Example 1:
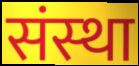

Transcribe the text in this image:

संस्‍था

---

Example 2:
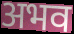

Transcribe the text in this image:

अभव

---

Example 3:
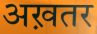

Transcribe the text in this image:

अख़तर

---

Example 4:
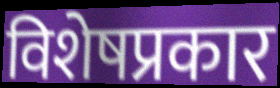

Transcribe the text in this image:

विशेषप्रकार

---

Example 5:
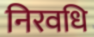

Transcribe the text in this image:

निरवधि